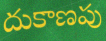
దుకాణపు